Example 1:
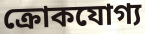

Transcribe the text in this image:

ক্রোকযোগ্য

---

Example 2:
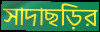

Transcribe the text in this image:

সাদাছড়ির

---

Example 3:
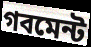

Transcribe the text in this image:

গবমেন্ট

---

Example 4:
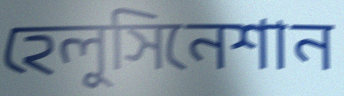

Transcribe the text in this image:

হেলুসিনেশান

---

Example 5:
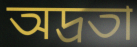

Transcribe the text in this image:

অদ্রতা